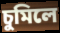
চুমিলে